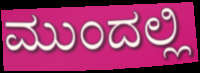
ಮುಂದಲ್ಲಿ